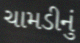
ચામડીનું